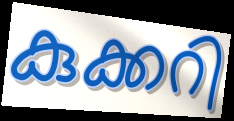
കുക്കറി